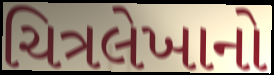
ચિત્રલેખાનો